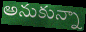
అనుకున్నా